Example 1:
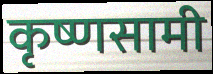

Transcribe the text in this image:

कृष्णसामी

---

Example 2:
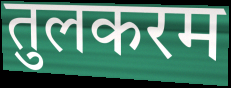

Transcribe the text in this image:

तुलकरम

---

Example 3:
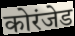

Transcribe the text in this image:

कोरंजेड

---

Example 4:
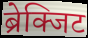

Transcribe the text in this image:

ब्रेक्जिट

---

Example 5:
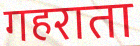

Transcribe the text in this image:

गहराता